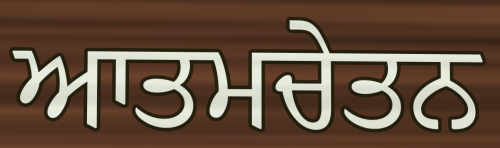
ਆਤਮਚੇਤਨ